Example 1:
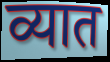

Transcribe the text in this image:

व्यात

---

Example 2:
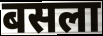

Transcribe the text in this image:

बसला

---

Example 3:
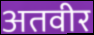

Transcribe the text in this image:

अतवीर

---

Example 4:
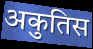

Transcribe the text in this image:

अकुतिस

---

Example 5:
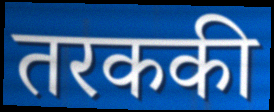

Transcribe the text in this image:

तरककी